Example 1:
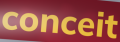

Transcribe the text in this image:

conceit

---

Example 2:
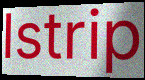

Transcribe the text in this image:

lstrip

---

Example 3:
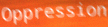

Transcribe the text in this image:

Oppression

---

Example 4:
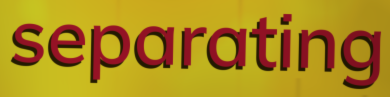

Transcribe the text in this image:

separating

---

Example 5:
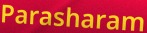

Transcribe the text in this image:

Parasharam